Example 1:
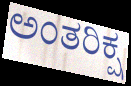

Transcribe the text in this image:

ಅಂತರಿಕ್ಷ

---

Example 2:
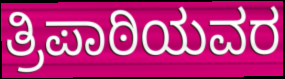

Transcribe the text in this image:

ತ್ರಿಪಾಠಿಯವರ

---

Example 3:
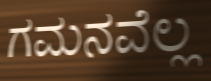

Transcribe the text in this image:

ಗಮನವೆಲ್ಲ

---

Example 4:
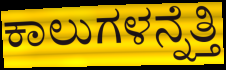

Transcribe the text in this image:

ಕಾಲುಗಳನ್ನೆತ್ತಿ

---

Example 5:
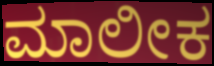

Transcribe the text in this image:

ಮಾಲೀಕ